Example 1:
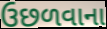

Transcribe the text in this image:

ઉછળવાના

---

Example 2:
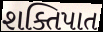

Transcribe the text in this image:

શક્તિપાત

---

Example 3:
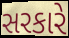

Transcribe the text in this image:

સરકારે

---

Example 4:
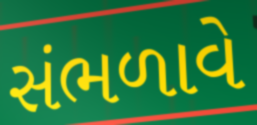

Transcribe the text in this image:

સંભળાવે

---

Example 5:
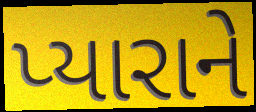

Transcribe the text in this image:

પ્યારાને